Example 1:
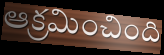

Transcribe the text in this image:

ఆక్రమించింది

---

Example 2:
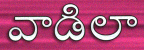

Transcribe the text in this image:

వాడిలా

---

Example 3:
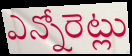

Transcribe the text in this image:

ఎన్నోరెట్లు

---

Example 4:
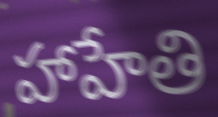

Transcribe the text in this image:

హాహేతి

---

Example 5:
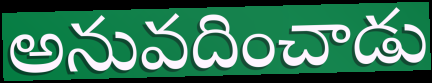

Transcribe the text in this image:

అనువదించాడు